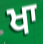
ਖਾ